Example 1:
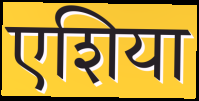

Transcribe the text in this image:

एशिया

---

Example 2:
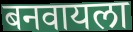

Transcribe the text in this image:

बनवायला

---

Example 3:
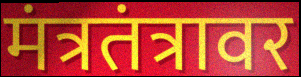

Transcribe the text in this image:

मंत्रतंत्रावर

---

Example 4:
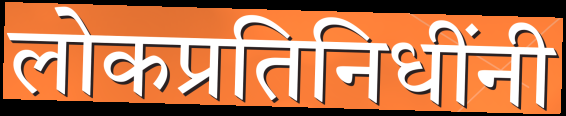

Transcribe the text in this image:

लोकप्रतिनिधींनी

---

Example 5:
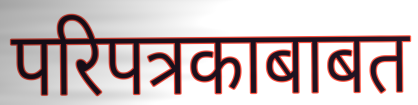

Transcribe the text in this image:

परिपत्रकाबाबत